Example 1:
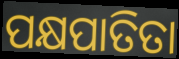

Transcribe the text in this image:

ପକ୍ଷପାତିତା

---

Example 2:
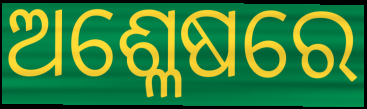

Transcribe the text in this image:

ଅଶ୍ଳେଷରେ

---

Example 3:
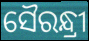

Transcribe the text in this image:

ସୈରନ୍ଧ୍ରୀ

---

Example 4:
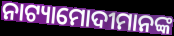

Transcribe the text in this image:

ନାଟ୍ୟାମୋଦୀମାନଙ୍କ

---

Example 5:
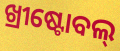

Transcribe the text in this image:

ଖ୍ରୀଷ୍ଟୋବଲ୍